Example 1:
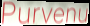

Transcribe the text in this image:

Purvenu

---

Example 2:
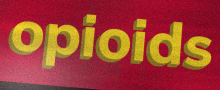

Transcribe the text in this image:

opioids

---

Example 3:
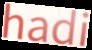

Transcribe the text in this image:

hadi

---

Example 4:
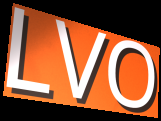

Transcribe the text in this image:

LVO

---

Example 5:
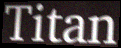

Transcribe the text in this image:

Titan